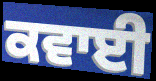
ਕਵਾਈ